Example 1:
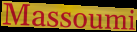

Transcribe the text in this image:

Massoumi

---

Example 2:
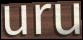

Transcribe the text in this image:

uru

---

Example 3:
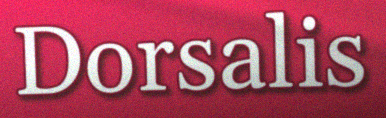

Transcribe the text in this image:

Dorsalis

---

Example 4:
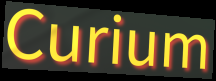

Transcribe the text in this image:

Curium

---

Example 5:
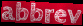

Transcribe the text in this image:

abbrev